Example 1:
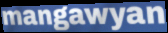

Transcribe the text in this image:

mangawyan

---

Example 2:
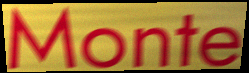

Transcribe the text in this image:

Monte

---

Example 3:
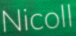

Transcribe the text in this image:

Nicoll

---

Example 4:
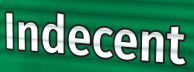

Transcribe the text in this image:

Indecent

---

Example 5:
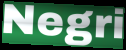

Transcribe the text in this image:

Negri